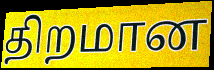
திறமான